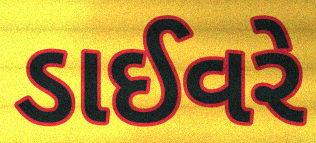
ડાઈવરે